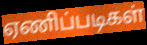
ஏணிப்படிகள்